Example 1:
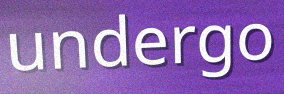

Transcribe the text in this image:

undergo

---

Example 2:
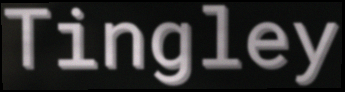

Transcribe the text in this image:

Tingley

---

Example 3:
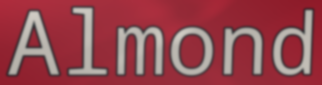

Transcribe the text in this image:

Almond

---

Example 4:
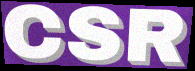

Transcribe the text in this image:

CSR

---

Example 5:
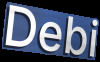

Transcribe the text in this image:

Debi